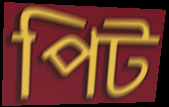
পিট